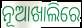
ନୂଆଖାଲିରେ